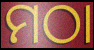
ମଠା